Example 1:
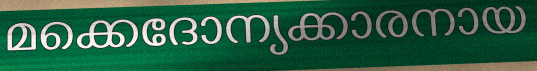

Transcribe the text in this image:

മക്കെദോന്യക്കാരനായ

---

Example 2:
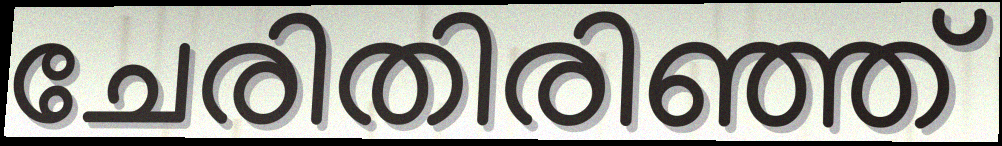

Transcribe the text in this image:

ചേരിതിരിഞ്ഞ്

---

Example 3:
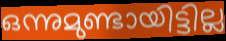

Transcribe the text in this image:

ഒന്നുമുണ്ടായിട്ടില്ല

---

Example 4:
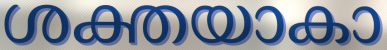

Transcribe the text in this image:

ശക്തയാകാ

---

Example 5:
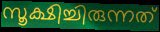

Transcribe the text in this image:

സൂക്ഷിച്ചിരുന്നത്